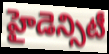
హైడెన్సిటీ